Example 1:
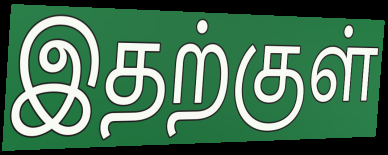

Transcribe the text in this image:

இதற்குள்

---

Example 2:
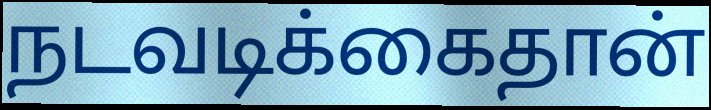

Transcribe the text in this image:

நடவடிக்கைதான்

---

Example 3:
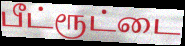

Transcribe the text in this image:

பீட்ரூட்டை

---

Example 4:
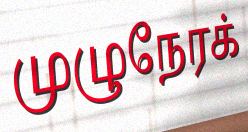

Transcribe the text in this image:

முழுநேரக்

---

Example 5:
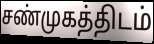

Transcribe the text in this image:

சண்முகத்திடம்